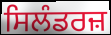
ਸਿਲੰਡਰਜ਼